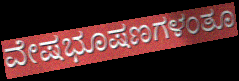
ವೇಷಭೂಷಣಗಳಂತೂ